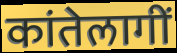
कांतेलागीं